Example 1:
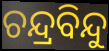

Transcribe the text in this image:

ଚନ୍ଦ୍ରବିନ୍ଦୁ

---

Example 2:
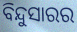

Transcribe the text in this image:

ବିନ୍ଦୁସାରର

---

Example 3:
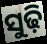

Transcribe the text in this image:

ସୁଢ଼ି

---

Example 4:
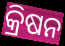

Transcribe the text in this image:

କ୍ରିଷନ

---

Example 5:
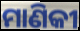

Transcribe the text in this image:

ମାଣିକୀ